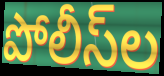
పోలీస్‌ల